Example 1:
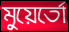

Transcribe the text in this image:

মুয়ের্তো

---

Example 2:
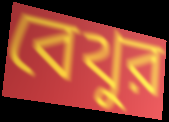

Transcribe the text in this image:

বেথুর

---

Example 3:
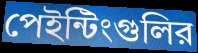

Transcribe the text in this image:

পেইন্টিংগুলির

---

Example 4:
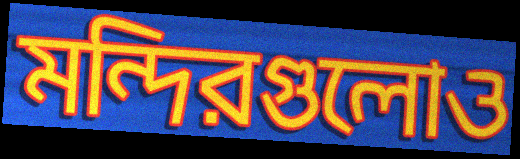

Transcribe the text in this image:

মন্দিরগুলোও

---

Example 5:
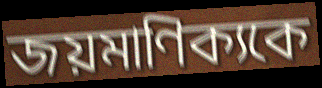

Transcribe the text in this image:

জয়মাণিক্যকে